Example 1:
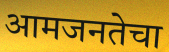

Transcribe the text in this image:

आमजनतेचा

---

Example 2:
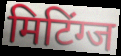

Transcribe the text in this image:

मिटिंग्ज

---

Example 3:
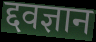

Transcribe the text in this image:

द्दवज्ञान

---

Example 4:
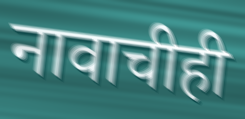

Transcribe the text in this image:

नावाचीही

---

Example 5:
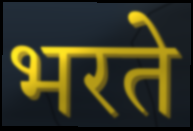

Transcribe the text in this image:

भरते